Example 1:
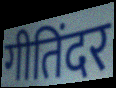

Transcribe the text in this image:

गीतिंदर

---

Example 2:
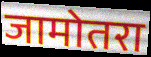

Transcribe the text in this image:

जामोतरा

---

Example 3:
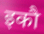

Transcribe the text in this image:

इकौ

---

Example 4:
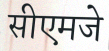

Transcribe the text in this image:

सीएमजे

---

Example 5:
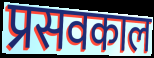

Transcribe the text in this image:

प्रसवकाल